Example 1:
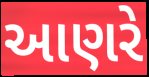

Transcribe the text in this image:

આણરે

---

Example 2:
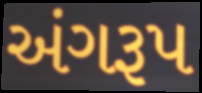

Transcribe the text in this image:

અંગરૂપ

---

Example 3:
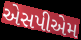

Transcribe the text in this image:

એસપીએમ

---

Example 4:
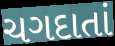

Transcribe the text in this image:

ચગદાતાં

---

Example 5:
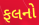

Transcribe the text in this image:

ફલનો